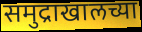
समुद्राखालच्या